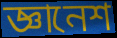
জ্ঞানেশ